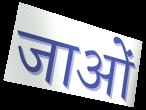
जाओं